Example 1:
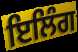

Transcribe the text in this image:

ਇਲਿੰਗ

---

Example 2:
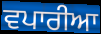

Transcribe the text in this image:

ਵਪਾਰੀਆ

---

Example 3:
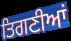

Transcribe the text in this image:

ਤਿਗਣੀਆਂ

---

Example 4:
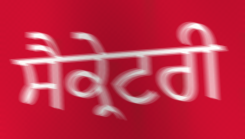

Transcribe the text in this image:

ਸੈਕ੍ਰੇਟਰੀ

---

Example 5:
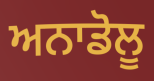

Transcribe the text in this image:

ਅਨਾਡੋਲੂ